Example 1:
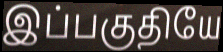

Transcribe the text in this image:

இப்பகுதியே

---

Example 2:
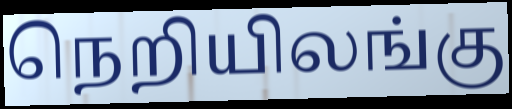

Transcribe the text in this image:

நெறியிலங்கு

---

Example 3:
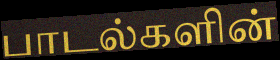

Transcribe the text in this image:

பாடல்களின்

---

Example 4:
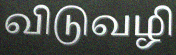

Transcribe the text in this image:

விடுவழி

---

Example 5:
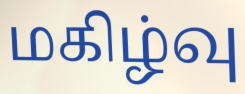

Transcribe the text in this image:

மகிழ்வு